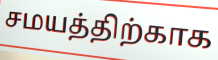
சமயத்திற்காக